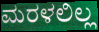
ಮರಳಲಿಲ್ಲ